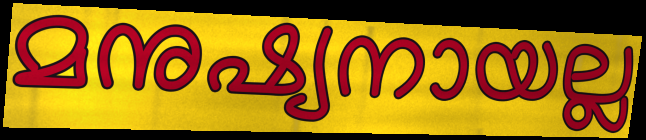
മനുഷ്യനായല്ല